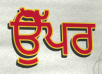
ਉੋੱਪਰ